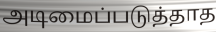
அடிமைப்படுத்தாத